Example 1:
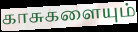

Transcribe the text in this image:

காசுகளையும்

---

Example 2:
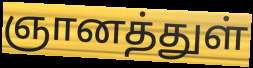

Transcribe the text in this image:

ஞானத்துள்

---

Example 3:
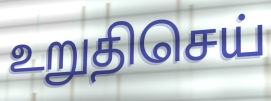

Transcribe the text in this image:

உறுதிசெய்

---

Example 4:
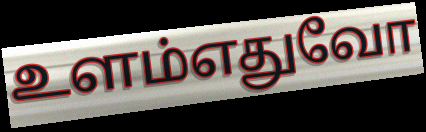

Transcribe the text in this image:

உளம்எதுவோ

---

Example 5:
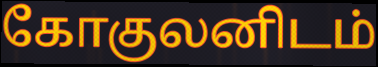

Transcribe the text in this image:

கோகுலனிடம்